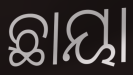
ଛାୟା